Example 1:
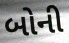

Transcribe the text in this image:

બોની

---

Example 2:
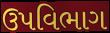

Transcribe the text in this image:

ઉપવિભાગ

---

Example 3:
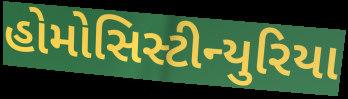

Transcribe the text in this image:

હોમોસિસ્ટીન્યુરિયા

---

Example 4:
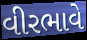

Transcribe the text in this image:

વીરભાવે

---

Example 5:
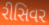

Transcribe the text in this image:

રીસિવર